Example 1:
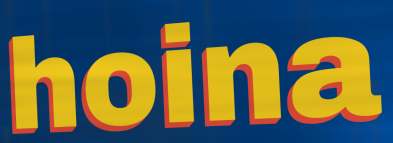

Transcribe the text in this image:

hoina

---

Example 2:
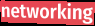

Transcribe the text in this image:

networking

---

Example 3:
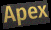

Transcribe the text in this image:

Apex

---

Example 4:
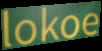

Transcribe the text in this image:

lokoe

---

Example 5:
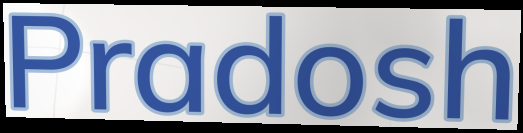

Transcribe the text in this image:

Pradosh